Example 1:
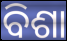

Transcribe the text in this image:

ବିଶା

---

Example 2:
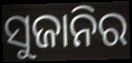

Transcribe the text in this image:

ସୁଜାନିର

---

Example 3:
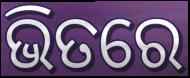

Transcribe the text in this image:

ଭିତରେ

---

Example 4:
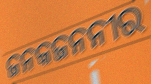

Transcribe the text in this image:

ଜନକଜନନୀର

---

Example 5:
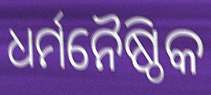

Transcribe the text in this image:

ଧର୍ମନୈଷ୍ଠିକ